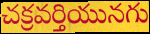
చక్రవర్తియునగు